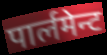
पार्लमेन्ट